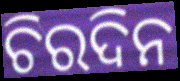
ଚିରଦିନ